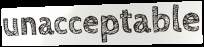
unacceptable